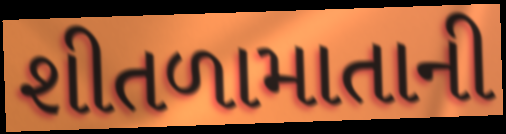
શીતળામાતાની